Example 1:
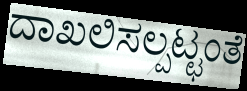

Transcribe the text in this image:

ದಾಖಲಿಸಲ್ಪಟ್ಟಂತೆ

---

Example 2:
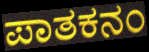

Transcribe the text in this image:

ಪಾತಕನಂ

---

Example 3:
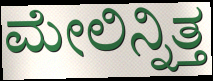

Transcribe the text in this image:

ಮೇಲಿನ್ನಿತ್ತ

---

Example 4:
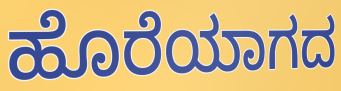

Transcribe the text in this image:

ಹೊರೆಯಾಗದ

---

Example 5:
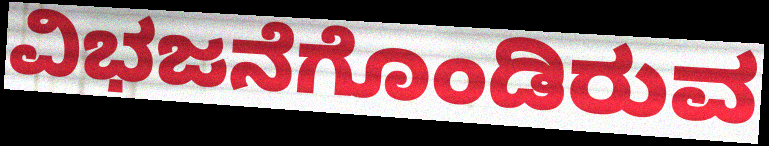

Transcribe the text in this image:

ವಿಭಜನೆಗೊಂಡಿರುವ